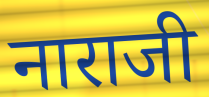
नाराजी